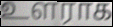
உளராக